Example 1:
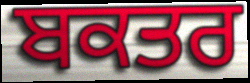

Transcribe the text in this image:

ਬਕਤਰ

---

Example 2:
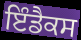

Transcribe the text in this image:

ਇੰਡੈਕਸ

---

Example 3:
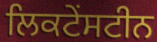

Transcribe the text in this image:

ਲਿਕਟੇਂਸਟੀਨ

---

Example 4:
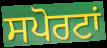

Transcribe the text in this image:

ਸਪੋਰਟਾਂ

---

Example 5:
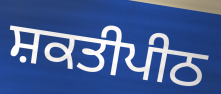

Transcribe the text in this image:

ਸ਼ਕਤੀਪੀਠ